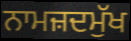
ਨਾਮਜ਼ਦਮੁੱਖ